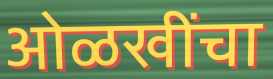
ओळखींचा